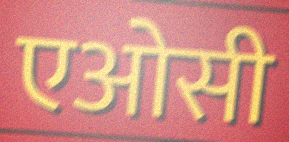
एओसी